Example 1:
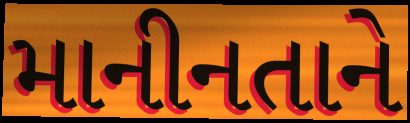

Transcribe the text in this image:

માનીનતાને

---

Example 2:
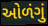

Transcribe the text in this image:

ઓળંગું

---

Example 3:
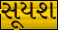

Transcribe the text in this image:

સૂયશ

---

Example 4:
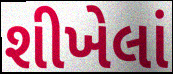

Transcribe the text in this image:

શીખેલાં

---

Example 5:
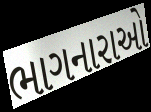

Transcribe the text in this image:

ભાગનારાઓ